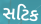
સટિક